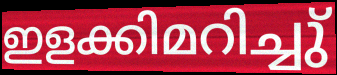
ഇളക്കിമറിച്ചു്